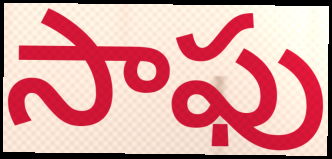
సాఫు